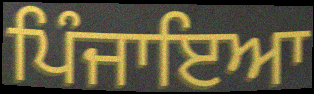
ਪਿੰਜਾਇਆ